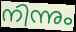
നിന്നും